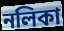
নলিকা